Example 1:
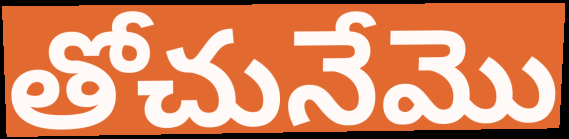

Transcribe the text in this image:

తోచునేమొ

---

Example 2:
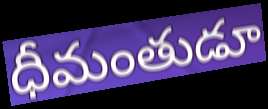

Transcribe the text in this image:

ధీమంతుడూ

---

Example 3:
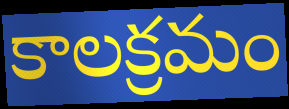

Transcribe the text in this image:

కాలక్రమం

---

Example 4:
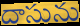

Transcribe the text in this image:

దాసును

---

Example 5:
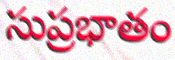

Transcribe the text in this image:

సుప్రభాతం